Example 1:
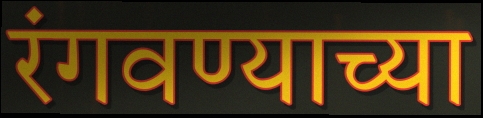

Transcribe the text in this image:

रंगवण्याच्या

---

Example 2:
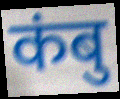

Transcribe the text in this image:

कंबु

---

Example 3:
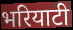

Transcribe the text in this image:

भरियाटी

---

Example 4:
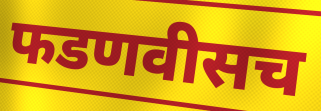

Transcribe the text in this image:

फडणवीसच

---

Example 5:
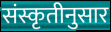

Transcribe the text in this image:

संस्कृतीनुसार